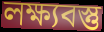
লক্ষ্যবস্তু